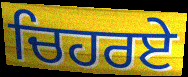
ਚਿਹਰਏ